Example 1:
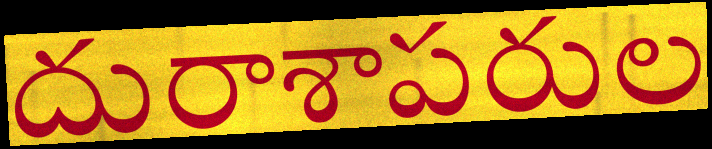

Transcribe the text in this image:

దురాశాపరుల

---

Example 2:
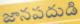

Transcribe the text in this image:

జానపదుడి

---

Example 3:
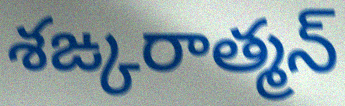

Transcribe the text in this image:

శఙ్కరాత్మన్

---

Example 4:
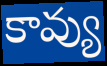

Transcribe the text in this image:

కావ్యు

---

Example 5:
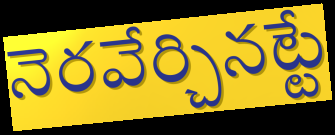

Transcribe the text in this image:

నెరవేర్చినట్టే